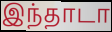
இந்தாடா